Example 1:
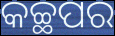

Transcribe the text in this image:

କଚ୍ଛପର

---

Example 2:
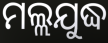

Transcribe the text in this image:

ମଲ୍ଲଯୁଦ୍ଧ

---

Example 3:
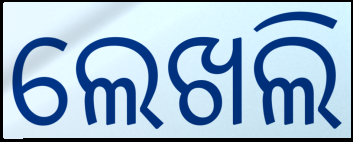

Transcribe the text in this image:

ଲେଖଲି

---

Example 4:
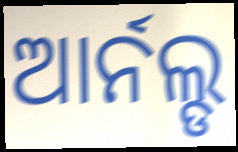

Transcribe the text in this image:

ଆର୍ନଲ୍ଡ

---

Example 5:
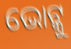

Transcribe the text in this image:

ଭୋଟ୍କୁ